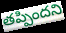
తప్పిందని